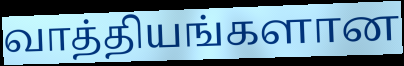
வாத்தியங்களான